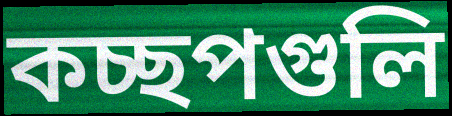
কচ্ছপগুলি